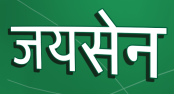
जयसेन